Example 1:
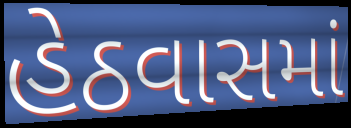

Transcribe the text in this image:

હેઠવાસમાં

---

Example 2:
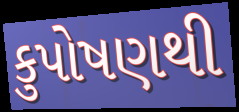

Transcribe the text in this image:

કુપોષણથી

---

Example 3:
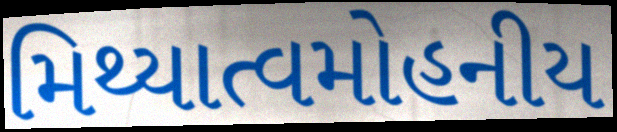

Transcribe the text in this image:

મિથ્યાત્વમોહનીય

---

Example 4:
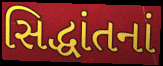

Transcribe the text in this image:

સિદ્ધાંતનાં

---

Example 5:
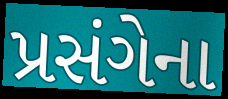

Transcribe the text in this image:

પ્રસંગેના